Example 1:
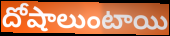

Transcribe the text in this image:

దోషాలుంటాయి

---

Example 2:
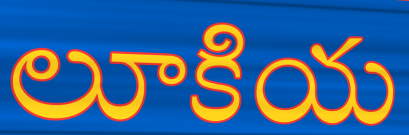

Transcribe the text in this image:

లూకియ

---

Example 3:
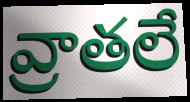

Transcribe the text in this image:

వ్రాతలే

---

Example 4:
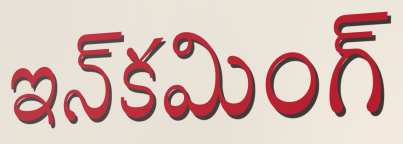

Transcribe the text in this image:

ఇన్‌కమింగ్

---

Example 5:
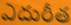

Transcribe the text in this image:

ఎదురీత